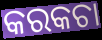
କରକଚା